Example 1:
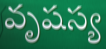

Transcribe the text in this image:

వృషస్య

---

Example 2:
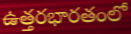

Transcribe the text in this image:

ఉత్తరభారతంలో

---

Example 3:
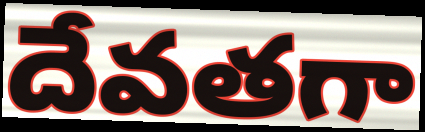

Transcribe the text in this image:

దేవతగా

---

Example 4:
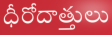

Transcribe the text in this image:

ధీరోదాత్తులు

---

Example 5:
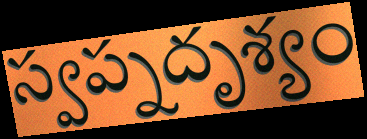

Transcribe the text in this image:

స్వప్నదృశ్యం